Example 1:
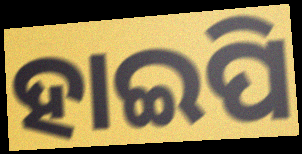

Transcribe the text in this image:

ହାଇପି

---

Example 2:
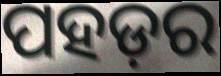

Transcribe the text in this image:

ପହଡ଼ର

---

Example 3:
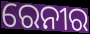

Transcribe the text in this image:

ରେନୀର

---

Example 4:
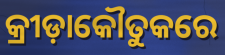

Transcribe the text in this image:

କ୍ରୀଡ଼ାକୌତୁକରେ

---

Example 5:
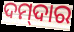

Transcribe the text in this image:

ଦମ୍‌ଦାର